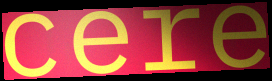
cere